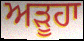
ਅੜੂਹਾ